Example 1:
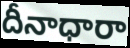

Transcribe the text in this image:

దీనాధారా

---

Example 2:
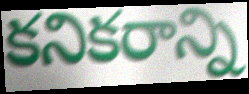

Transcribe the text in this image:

కనికరాన్ని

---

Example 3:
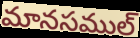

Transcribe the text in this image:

మానసముల్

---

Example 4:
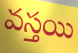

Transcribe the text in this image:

వస్తయి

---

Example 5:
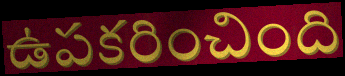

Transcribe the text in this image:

ఉపకరించింది